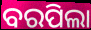
ବରପିଲା